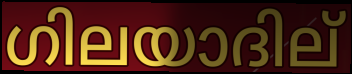
ഗിലയാദില്